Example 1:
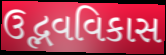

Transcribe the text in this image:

ઉદ્ભવવિકાસ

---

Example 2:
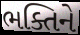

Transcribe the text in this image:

ભક્તિને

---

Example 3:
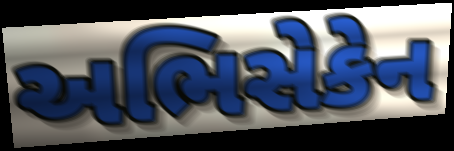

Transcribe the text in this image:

અભિસેકેન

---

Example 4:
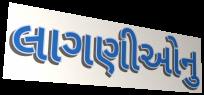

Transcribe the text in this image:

લાગણીઓનુ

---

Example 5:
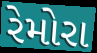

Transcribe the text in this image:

રેમોરા